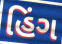
હિંગ